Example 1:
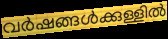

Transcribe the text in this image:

വർഷങ്ങൾക്കുള്ളിൽ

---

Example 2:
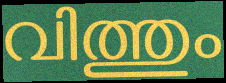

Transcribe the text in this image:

വിത്തും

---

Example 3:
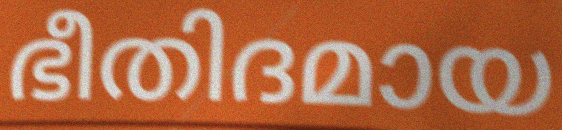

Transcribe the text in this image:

ഭീതിദമായ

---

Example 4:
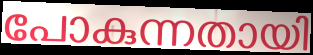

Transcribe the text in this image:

പോകുന്നതായി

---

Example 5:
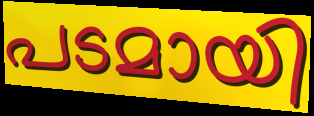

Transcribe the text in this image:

പടമായി